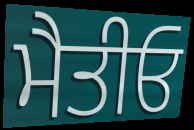
ਮੈਤੀਓ